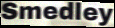
Smedley